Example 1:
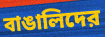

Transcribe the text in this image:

বাঙালিদের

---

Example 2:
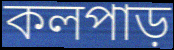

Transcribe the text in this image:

কলপাড়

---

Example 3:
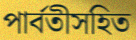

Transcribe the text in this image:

পার্বতীসহিত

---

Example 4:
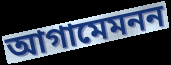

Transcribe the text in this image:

আগামেমনন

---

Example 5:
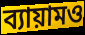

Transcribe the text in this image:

ব্যায়ামও